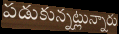
పడుకున్నట్లున్నారు